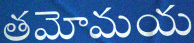
తమోమయ